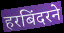
हरबिंदरने